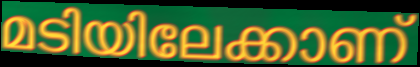
മടിയിലേക്കാണ്